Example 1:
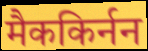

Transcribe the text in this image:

मैककिर्नन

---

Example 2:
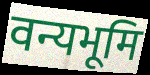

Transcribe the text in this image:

वन्यभूमि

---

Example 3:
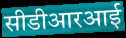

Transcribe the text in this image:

सीडीआरआई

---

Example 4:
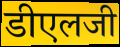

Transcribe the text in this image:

डीएलजी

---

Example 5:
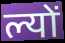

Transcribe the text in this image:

ल्यों